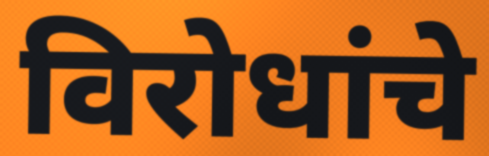
विरोधांचे